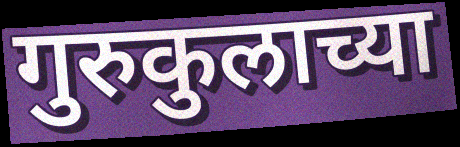
गुरुकुलाच्या